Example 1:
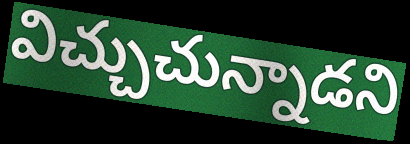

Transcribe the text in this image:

విచ్చుచున్నాడని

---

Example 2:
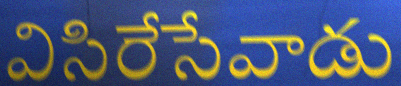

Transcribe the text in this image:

విసిరేసేవాడు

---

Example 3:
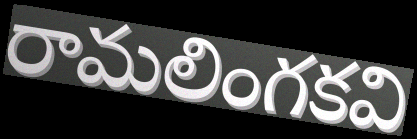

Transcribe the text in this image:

రామలింగకవి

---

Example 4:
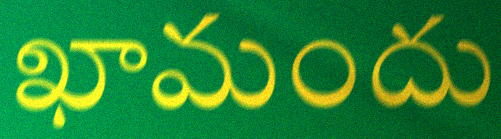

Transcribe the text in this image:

ఖామందు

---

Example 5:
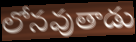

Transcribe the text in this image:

లోనవుతాడు